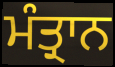
ਮੰਤ੍ਰਾਨ